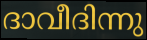
ദാവീദിന്നു